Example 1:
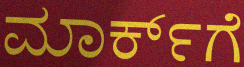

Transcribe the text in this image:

ಮಾರ್ಕ್‌ಗೆ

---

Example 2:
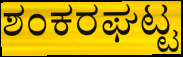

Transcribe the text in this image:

ಶಂಕರಘಟ್ಟ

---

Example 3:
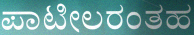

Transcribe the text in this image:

ಪಾಟೀಲರಂತಹ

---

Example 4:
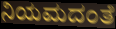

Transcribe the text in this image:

ನಿಯಮದಂತೆ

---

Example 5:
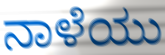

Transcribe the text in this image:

ನಾಳೆಯು